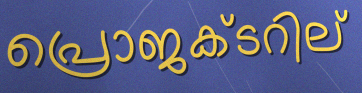
പ്രൊജക്ടറില്